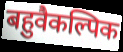
बहुवैकल्पिक